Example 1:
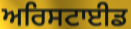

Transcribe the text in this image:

ਅਰਿਸਟਾਈਡ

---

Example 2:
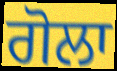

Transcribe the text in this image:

ਗੋਲਾ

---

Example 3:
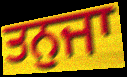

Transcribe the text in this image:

ਤਨੁਜਾ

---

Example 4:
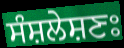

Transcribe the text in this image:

ਸੰਸ਼ਲੇਸ਼ਣਃ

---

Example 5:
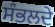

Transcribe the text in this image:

ਸੰਭਲਦੇ